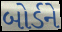
બોર્ડને